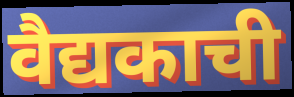
वैद्यकाची